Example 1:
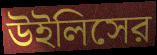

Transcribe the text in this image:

উইলিসের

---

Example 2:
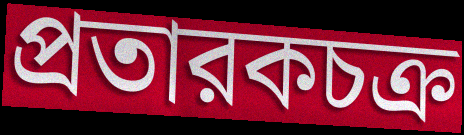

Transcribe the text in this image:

প্রতারকচক্র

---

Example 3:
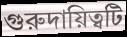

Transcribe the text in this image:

গুরুদায়িত্বটি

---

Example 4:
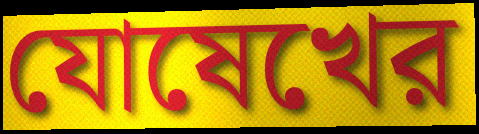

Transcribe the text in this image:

যোষেখের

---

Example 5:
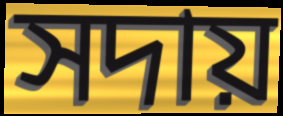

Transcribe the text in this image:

সদায়